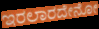
ಇರಲಾರದೇನೋ